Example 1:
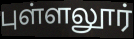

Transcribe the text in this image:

புள்ளலூர்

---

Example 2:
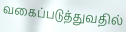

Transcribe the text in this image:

வகைப்படுத்துவதில்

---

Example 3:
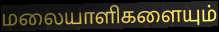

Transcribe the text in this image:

மலையாளிகளையும்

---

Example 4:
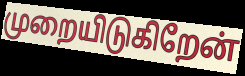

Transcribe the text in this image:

முறையிடுகிறேன்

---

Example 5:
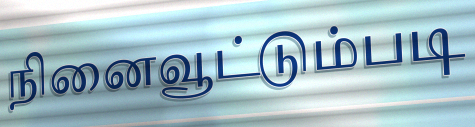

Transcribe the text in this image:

நினைவூட்டும்படி